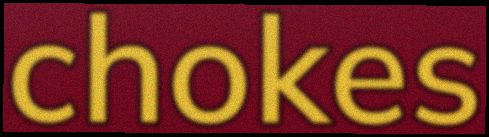
chokes